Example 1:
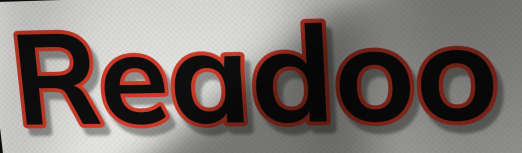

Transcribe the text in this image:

Readoo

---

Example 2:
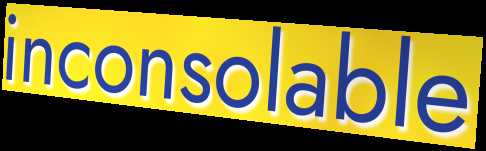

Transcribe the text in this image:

inconsolable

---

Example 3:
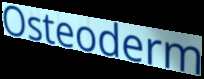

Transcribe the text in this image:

Osteoderm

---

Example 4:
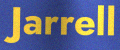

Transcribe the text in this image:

Jarrell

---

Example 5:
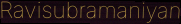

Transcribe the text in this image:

Ravisubramaniyan